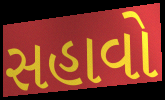
સહાવો